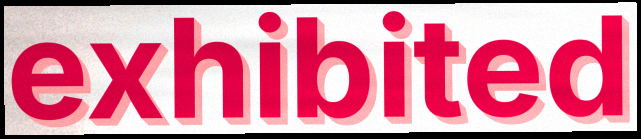
exhibited